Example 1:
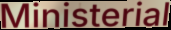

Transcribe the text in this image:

Ministerial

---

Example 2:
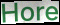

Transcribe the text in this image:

Hore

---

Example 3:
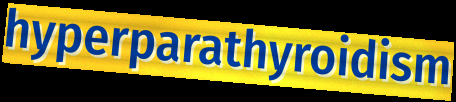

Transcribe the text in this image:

hyperparathyroidism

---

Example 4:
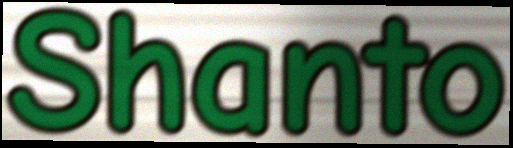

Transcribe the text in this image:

Shanto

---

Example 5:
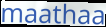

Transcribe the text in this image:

maathaa